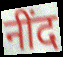
नींद